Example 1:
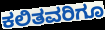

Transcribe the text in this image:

ಕಲಿತವರಿಗೂ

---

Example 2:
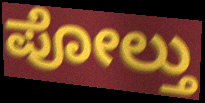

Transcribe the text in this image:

ಪೋಲ್ತು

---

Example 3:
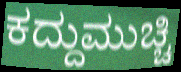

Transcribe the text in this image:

ಕದ್ದುಮುಚ್ಚಿ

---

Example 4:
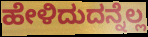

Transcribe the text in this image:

ಹೇಳಿದುದನ್ನೆಲ್ಲ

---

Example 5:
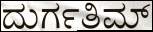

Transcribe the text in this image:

ದುರ್ಗತಿಮ್